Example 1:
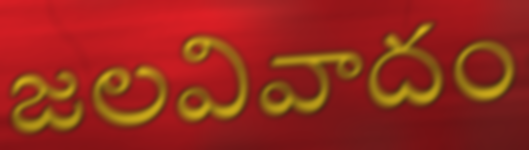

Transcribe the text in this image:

జలవివాదం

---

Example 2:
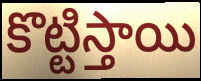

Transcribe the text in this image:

కొట్టిస్తాయి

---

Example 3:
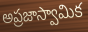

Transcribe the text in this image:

అప్రజాస్వామిక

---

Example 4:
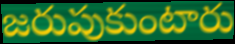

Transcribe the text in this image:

జరుపుకుంటారు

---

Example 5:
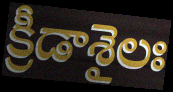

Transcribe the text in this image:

క్రీడాశైలః